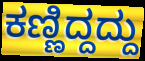
ಕಣ್ಣಿದ್ದದ್ದು